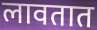
लावतात